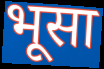
भूसा